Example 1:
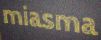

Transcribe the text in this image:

miasma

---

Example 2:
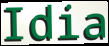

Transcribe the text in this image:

Idia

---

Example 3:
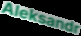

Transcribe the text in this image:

Aleksandr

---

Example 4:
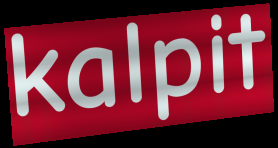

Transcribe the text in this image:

kalpit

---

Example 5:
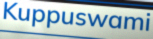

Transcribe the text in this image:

Kuppuswami